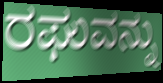
ರಘುವನ್ನು